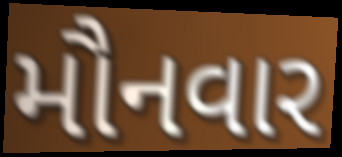
મૌનવાર